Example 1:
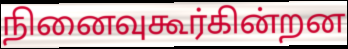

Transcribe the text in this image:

நினைவுகூர்கின்றன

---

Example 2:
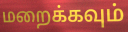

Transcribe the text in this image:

மறைக்கவும்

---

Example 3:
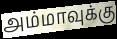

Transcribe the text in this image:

அம்மாவுக்கு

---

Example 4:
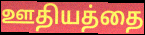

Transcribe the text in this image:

ஊதியத்தை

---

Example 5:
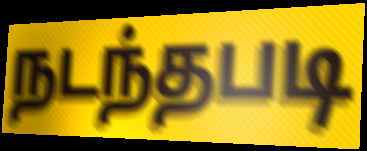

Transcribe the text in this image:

நடந்தபடி